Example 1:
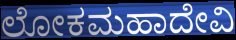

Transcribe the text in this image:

ಲೋಕಮಹಾದೇವಿ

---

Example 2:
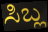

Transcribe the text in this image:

ಸಿಬ್ಲ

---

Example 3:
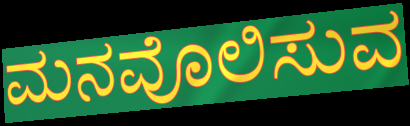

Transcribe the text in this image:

ಮನವೊಲಿಸುವ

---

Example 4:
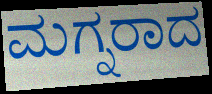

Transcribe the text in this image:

ಮಗ್ನರಾದ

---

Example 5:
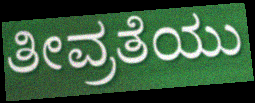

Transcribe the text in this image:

ತೀವ್ರತೆಯು